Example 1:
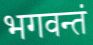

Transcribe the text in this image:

भगवन्तं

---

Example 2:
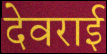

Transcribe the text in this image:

देवराई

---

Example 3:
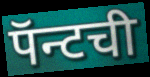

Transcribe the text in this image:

पॅन्टची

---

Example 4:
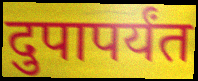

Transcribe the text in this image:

दुपापर्यंत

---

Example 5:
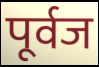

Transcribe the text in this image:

पूर्वज